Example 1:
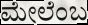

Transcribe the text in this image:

ಮೇಲೆಂಬ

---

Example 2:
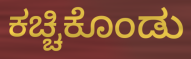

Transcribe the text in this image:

ಕಚ್ಚಿಕೊಂಡು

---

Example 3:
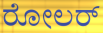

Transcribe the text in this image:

ರೋಲರ್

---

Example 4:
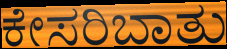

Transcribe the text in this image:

ಕೇಸರಿಬಾತು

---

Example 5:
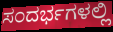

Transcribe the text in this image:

ಸಂದರ್ಭಗಳಲ್ಲಿ